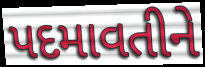
પદમાવતીને